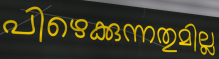
പിഴെക്കുന്നതുമില്ല